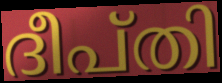
ദീപ്തി